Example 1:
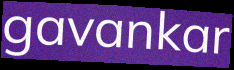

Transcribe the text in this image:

gavankar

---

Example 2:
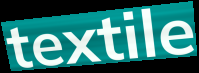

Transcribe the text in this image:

textile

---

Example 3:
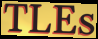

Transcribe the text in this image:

TLEs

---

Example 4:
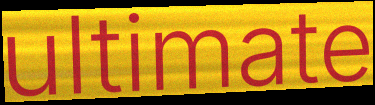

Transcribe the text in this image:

ultimate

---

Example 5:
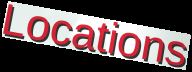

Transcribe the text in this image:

Locations